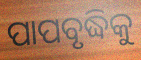
ପାପବୃଦ୍ଧିକୁ